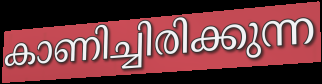
കാണിച്ചിരിക്കുന്ന